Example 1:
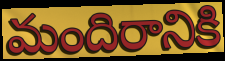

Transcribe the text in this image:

మందిరానికి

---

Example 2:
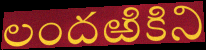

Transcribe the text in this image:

లందఱికిని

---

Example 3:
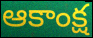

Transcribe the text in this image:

ఆకాంక్ష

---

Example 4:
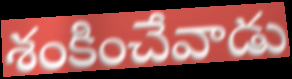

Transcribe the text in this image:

శంకించేవాడు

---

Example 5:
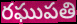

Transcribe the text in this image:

రఘుపతి